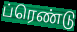
ப்ரெண்டு